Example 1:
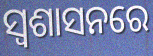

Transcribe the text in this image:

ସ୍ଵଶାସନରେ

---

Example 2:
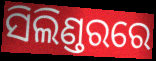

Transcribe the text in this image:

ସିଲିଣ୍ଡରରେ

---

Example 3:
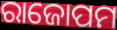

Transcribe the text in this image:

ରାଜୋପମ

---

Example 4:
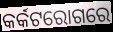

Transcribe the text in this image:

କର୍କଟରୋଗରେ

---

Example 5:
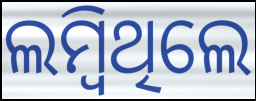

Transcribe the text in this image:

ଲମ୍ବିଥିଲେ